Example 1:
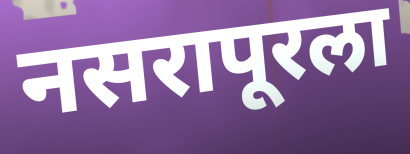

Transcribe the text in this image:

नसरापूरला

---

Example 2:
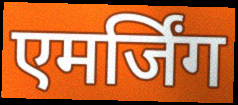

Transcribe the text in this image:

एमर्जिंग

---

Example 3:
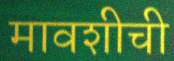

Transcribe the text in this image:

मावशीची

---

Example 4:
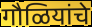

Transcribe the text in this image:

गौळियांचे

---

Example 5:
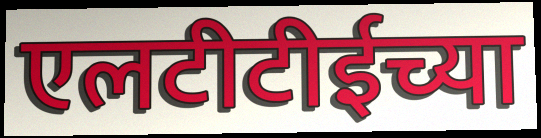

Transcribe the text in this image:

एलटीटीईच्या